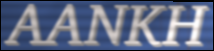
AANKH